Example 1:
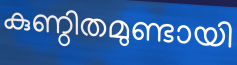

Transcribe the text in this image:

കുണ്ഠിതമുണ്ടായി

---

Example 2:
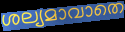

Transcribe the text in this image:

ശല്യമാവാതെ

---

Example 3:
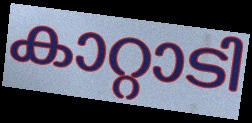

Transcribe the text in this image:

കാറ്റാടി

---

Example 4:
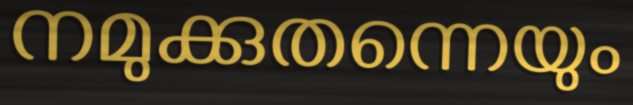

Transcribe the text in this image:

നമുക്കുതന്നെയും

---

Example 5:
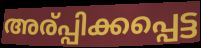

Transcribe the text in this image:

അര്പ്പിക്കപ്പെട്ട